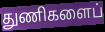
துணிகளைப்